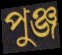
পুঞ্জ